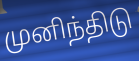
முனிந்திடு